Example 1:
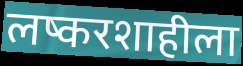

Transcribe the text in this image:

लष्करशाहीला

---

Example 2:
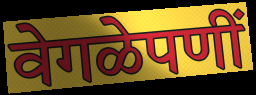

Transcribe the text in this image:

वेगळेपणीं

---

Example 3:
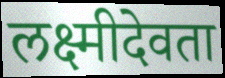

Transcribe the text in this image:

लक्ष्मीदेवता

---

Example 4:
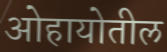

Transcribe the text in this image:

ओहायोतील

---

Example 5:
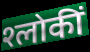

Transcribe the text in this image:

श्लोकीं